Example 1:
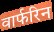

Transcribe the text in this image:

वार्फरिन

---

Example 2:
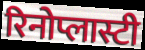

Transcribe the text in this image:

रिनोप्लास्टी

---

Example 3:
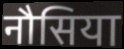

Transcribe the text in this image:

नौसिया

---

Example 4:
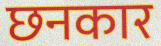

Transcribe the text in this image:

छनकार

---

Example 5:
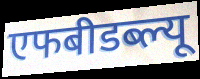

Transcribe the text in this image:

एफबीडब्ल्यू